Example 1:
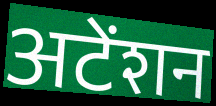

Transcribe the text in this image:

अटेंशन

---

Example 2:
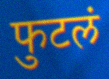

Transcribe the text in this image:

फुटलं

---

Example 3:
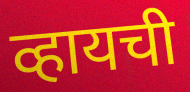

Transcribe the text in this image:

व्हायची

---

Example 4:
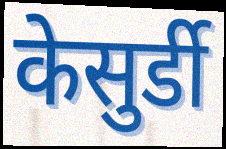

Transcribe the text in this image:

केसुर्डी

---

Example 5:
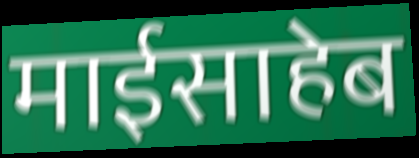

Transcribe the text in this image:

माईसाहेब